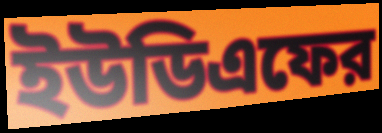
ইউডিএফের